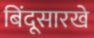
बिंदूसारखे